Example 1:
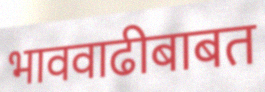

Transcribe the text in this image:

भाववाढीबाबत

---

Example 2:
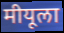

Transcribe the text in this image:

मीयूला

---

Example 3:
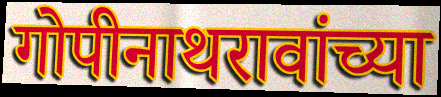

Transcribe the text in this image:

गोपीनाथरावांच्या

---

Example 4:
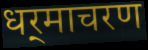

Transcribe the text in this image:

धर्माचरण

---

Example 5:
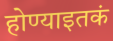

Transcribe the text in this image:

होण्याइतकं